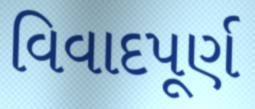
વિવાદપૂર્ણ